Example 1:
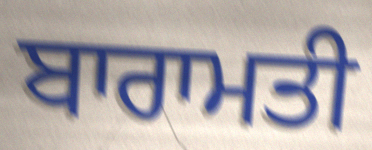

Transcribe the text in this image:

ਬਾਰਾਮਤੀ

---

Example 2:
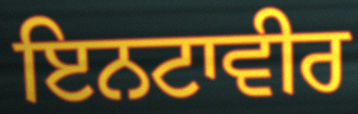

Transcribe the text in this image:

ਇਨਟਾਵੀਰ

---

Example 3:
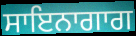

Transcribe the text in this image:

ਸਾਇਨਾਗਾਗ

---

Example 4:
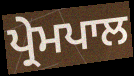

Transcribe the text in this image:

ਪ੍ਰੇਮਪਾਲ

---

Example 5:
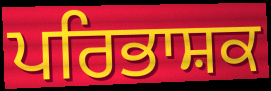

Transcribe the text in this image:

ਪਰਿਭਾਸ਼ਕ